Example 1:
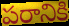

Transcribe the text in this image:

పరానికి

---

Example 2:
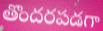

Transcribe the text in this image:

తొందరపడగా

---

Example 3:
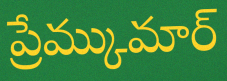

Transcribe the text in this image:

ప్రేమ్కుమార్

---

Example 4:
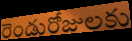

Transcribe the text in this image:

రెండురోజులకు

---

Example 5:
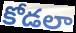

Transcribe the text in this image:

కోడలా